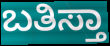
ಬತಿಸ್ತಾ